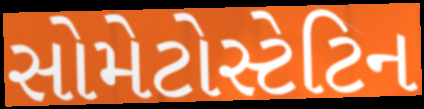
સોમેટોસ્ટેટિન